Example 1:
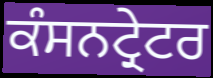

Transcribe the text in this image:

ਕੰਸਨਟ੍ਰੇਟਰ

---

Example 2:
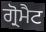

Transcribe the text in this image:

ਗ੍ਰੋਮੈਟ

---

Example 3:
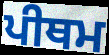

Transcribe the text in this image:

ਪੀਥਮ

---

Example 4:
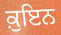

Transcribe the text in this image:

ਕ਼ੁਇਨ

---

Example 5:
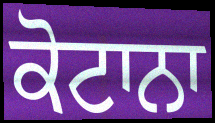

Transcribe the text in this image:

ਕੋਟਾਨਾ